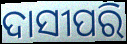
ଦାସୀପରି